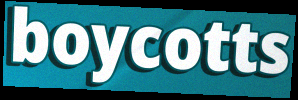
boycotts